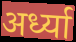
अर्ध्या